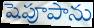
షెపూపాను